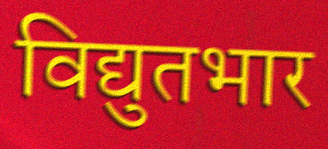
विद्युतभार